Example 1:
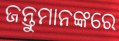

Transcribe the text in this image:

ଜନ୍ତୁମାନଙ୍କରେ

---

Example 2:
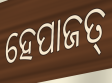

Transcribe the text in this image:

ହେପାଜତ୍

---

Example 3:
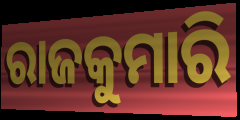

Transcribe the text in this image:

ରାଜକୁମାରି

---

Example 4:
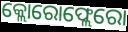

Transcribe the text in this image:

କ୍ଲୋରୋଫ୍ଲେରୋ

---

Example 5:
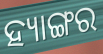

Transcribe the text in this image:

ହ୍ୟାଙ୍ଗର